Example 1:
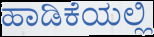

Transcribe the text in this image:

ಹಾಡಿಕೆಯಲ್ಲಿ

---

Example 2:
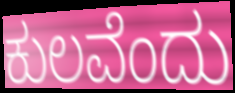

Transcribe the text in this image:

ಕುಲವೆಂದು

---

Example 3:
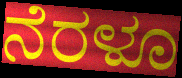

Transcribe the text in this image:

ನೆರಳೂ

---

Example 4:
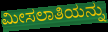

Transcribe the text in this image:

ಮೀಸಲಾತಿಯನ್ನು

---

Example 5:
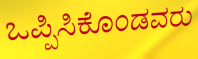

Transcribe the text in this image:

ಒಪ್ಪಿಸಿಕೊಂಡವರು